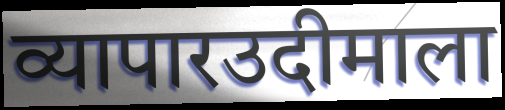
व्यापारउदीमाला